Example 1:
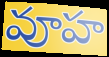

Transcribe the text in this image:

వూహ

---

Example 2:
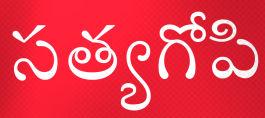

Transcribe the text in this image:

సత్యగోపి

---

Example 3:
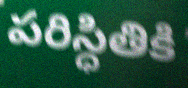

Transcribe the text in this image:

పరిస్ధితికి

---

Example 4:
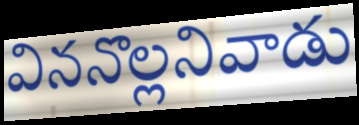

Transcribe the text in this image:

విననొల్లనివాడు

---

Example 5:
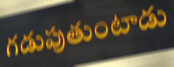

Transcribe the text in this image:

గడుపుతుంటాడు